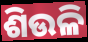
ଶିଉଳି